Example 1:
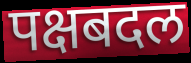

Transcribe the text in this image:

पक्षबदल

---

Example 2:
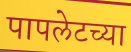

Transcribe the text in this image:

पापलेटच्या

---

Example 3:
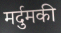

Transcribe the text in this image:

मर्दुमकी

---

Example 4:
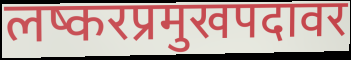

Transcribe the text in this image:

लष्करप्रमुखपदावर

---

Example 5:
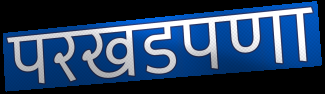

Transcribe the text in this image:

परखडपणा